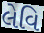
લેવિ